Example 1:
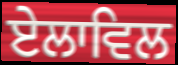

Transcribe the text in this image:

ਏਲਾਵਿਲ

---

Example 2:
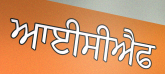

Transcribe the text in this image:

ਆਈਸੀਐਫ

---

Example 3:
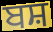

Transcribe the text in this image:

ਬਸ਼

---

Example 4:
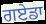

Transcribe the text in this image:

ਗਏਡਾ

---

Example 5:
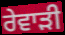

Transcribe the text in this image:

ਰੇਵਾਡ਼ੀ